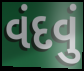
વંદવું